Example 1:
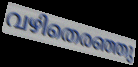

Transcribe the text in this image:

വഴിതെരഞ്ഞു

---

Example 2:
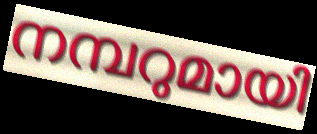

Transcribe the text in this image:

നമ്പറുമായി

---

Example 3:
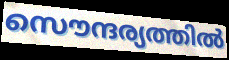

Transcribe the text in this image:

സൌന്ദര്യത്തിൽ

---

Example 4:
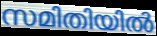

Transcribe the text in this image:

സമിതിയിൽ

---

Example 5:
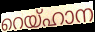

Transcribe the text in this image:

റെയ്ഹാന